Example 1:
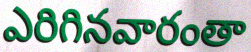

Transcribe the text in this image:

ఎరిగినవారంతా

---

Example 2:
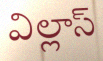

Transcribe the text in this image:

విల్లాస్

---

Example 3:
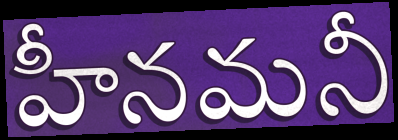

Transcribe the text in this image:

హీనమనీ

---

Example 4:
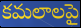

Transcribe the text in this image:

కమలాలపై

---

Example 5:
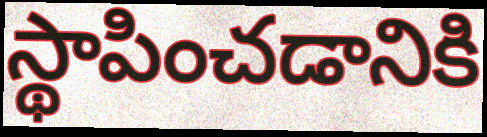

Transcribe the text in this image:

స్థాపించడానికి